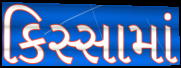
કિસ્સામાં